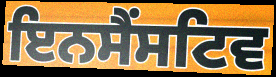
ਇਨਸੈਂਸਟਿਵ